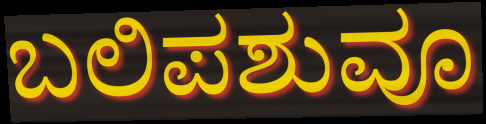
ಬಲಿಪಶುವೂ